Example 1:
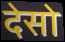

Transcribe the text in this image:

देसो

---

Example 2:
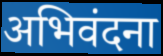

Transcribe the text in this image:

अभिवंदना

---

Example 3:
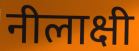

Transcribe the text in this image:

नीलाक्षी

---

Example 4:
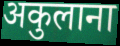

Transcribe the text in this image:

अकुलाना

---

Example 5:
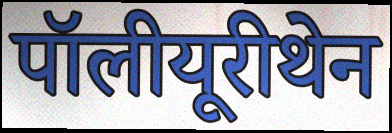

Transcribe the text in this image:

पॉलीयूरीथेन